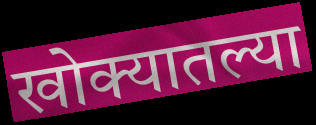
खोक्यातल्या